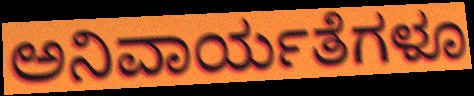
ಅನಿವಾರ್ಯತೆಗಳೂ